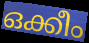
ഒക്കീം